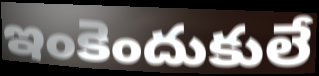
ఇంకెందుకులే